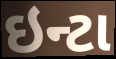
ઇન્ટા